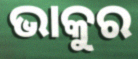
ଭାକୁର